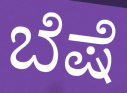
ಬೆಷೆ